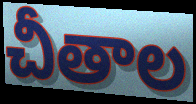
చీతాల